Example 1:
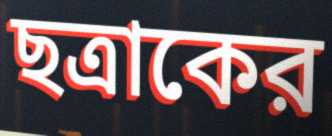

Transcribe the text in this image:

ছত্রাকের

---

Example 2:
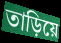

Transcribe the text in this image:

তাড়িয়ে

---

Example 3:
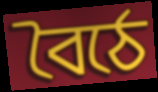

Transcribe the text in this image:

বৈঠে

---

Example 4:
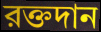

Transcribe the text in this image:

রক্তদান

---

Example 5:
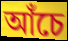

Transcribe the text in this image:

আঁচে